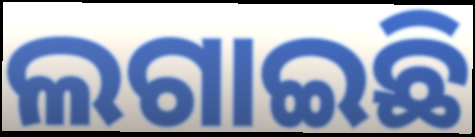
ଲଗାଇଛି